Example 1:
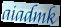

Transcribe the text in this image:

aiadmk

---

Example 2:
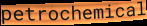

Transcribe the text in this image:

petrochemical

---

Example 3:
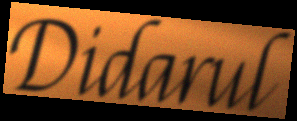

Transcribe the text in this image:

Didarul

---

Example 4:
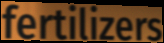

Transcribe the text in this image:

fertilizers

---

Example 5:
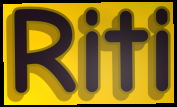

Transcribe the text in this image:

Riti